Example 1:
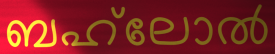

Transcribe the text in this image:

ബഹ്‌ലോൽ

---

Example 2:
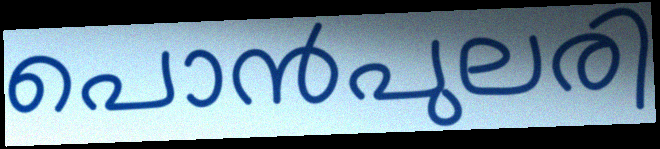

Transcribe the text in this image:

പൊൻപുലരി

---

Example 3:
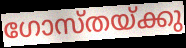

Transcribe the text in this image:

ഗോസ്തയ്ക്കു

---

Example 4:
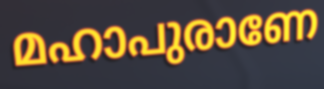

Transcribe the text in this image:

മഹാപുരാണേ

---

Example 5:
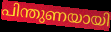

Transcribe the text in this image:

പിന്തുണയായി